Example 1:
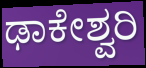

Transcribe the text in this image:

ಢಾಕೇಶ್ವರಿ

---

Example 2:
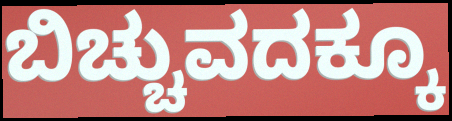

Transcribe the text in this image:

ಬಿಚ್ಚುವದಕ್ಕೂ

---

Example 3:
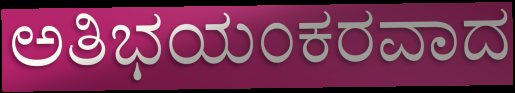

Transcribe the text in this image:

ಅತಿಭಯಂಕರವಾದ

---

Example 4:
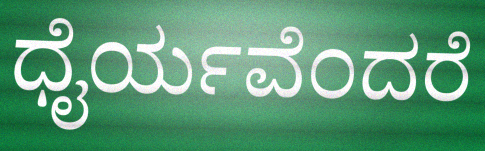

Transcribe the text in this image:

ಧೈರ್ಯವೆಂದರೆ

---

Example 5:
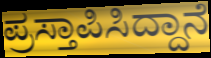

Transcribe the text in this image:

ಪ್ರಸ್ತಾಪಿಸಿದ್ದಾನೆ